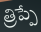
త్రిప్పే